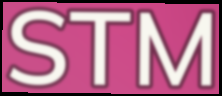
STM